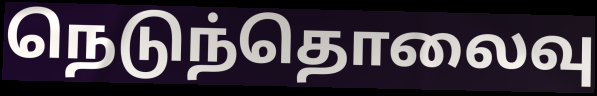
நெடுந்தொலைவு